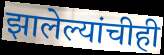
झालेल्यांचीही